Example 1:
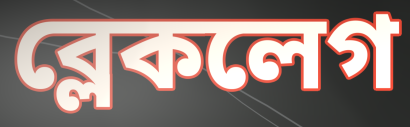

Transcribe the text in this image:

ব্লেকলেগ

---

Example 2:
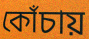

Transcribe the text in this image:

কোঁচায়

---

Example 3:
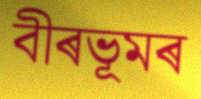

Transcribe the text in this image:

বীৰভূমৰ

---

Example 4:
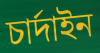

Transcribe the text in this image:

চাৰ্দাইন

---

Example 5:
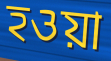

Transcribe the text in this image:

হওয়া